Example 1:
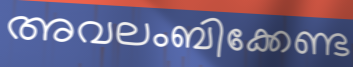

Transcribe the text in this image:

അവലംബിക്കേണ്ട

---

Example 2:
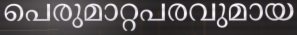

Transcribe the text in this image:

പെരുമാറ്റപരവുമായ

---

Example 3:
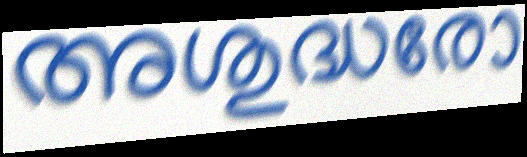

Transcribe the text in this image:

അശുദ്ധരോ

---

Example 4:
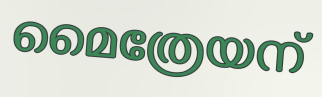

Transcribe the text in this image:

മൈത്രേയന്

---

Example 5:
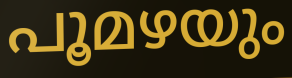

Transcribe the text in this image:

പൂമഴയും